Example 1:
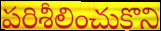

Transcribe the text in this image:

పరిశీలించుకొని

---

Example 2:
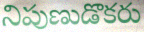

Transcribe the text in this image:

నిపుణుడొకరు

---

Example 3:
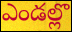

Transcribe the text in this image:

ఎండల్లొ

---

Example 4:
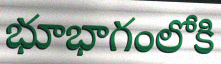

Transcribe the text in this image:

భూభాగంలోకి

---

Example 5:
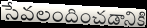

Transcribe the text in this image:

సేవలందించడానికి